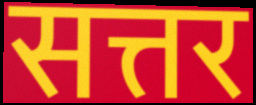
सत्तर